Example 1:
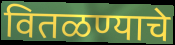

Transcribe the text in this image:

वितळण्याचे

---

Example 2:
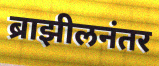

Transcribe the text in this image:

ब्राझीलनंतर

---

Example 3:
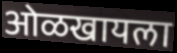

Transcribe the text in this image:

ओळखायला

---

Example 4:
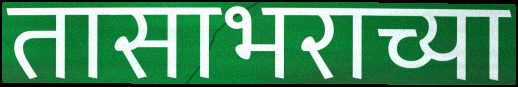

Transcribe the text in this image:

तासाभराच्या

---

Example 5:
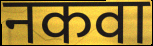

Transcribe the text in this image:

नकवा